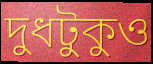
দুধটুকুও